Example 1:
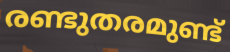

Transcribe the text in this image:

രണ്ടുതരമുണ്ട്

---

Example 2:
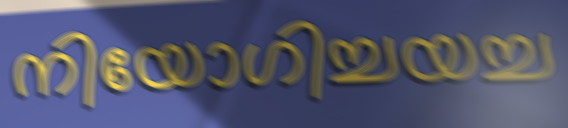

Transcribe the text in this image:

നിയോഗിച്ചയച്ച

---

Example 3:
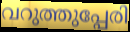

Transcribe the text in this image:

വറുത്തുപ്പേരി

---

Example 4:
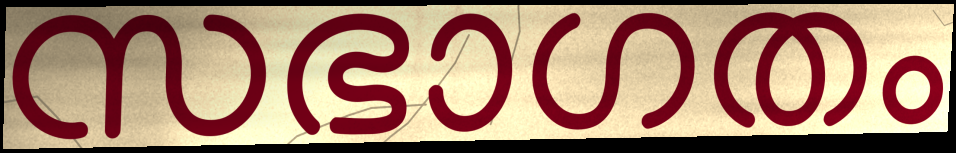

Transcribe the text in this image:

സഭാഗതം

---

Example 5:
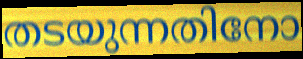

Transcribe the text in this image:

തടയുന്നതിനോ